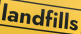
landfills